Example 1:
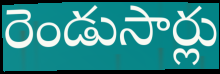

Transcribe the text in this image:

రెండుసార్లు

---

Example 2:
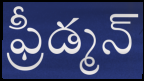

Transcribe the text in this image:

ఫ్రీడ్మన్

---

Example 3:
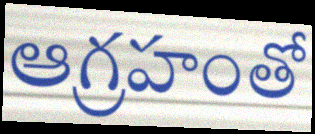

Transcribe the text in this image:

ఆగ్రహంతో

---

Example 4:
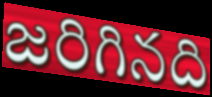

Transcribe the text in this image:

జరిగినది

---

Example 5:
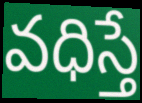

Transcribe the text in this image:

వధిస్తే